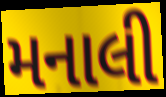
મનાલી